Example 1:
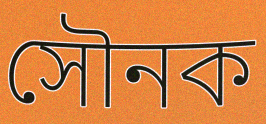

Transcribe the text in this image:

সৌনক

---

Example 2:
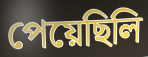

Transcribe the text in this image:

পেয়েছিলি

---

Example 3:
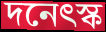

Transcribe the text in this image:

দনেৎস্ক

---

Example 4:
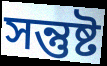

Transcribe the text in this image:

সন্তুষ্ট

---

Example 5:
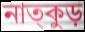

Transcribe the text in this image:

নাত্কুড়